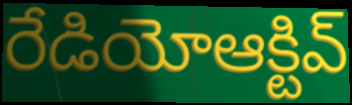
రేడియోఆక్టివ్